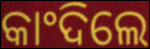
କାଂଦିଲେ